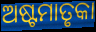
ଅଷ୍ଟମାତୃକା